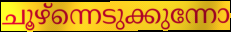
ചൂഴ്ന്നെടുക്കുന്നോ